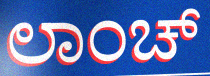
ಲಾಂಚ್